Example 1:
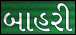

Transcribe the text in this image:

બાહરી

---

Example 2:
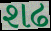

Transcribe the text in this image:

શઢ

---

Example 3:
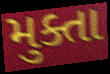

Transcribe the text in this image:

મુક્તા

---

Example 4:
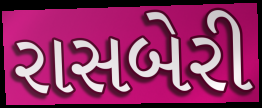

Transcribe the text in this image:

રાસબેરી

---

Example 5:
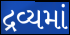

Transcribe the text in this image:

દ્રવ્યમાં